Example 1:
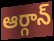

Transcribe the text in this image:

ఆర్గాన్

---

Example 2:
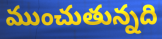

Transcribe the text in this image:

ముంచుతున్నది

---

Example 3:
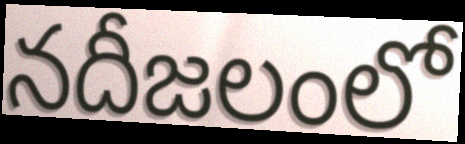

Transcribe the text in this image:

నదీజలంలో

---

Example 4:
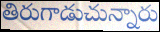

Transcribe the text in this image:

తిరుగాడుచున్నారు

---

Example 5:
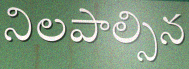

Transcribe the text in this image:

నిలపాల్సిన